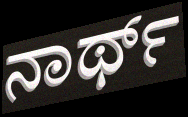
ನಾರ್ಥ್